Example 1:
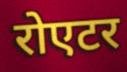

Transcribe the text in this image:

रोएटर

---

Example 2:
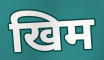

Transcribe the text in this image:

खिम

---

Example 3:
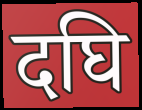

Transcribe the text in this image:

दघि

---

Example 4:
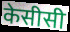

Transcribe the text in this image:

केसीसी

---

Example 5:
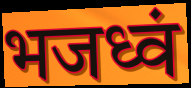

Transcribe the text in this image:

भजध्वं